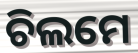
ଚିଲମେ